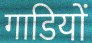
गाडियों